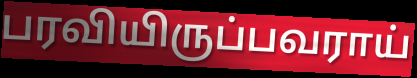
பரவியிருப்பவராய்